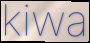
kiwa